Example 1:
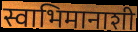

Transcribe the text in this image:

स्वाभिमानाशी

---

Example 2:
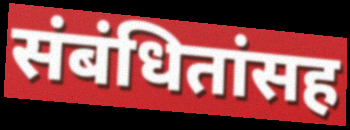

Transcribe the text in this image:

संबंधितांसह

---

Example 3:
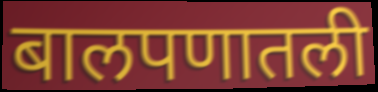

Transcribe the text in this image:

बालपणातली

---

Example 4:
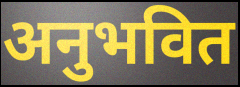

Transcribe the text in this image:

अनुभवित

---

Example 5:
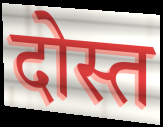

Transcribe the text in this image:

दोस्त